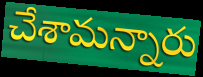
చేశామన్నారు